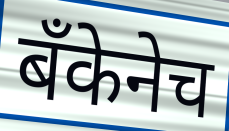
बँकेनेच